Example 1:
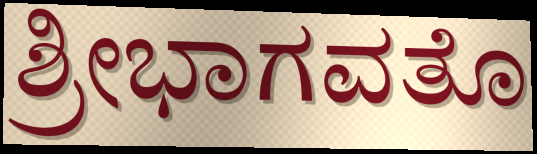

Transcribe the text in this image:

ಶ್ರೀಭಾಗವತೊ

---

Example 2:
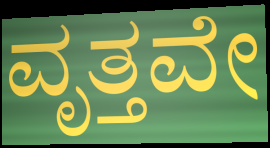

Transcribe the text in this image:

ವೃತ್ತವೇ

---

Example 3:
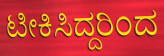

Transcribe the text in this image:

ಟೀಕಿಸಿದ್ದರಿಂದ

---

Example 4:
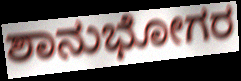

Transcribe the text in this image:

ಶಾನುಭೋಗರ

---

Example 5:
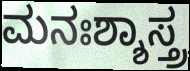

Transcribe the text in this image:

ಮನಃಶ್ಶಾಸ್ತ್ರ